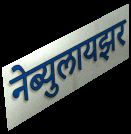
नेब्युलायझर